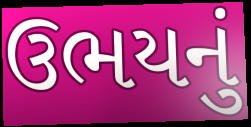
ઉભયનું